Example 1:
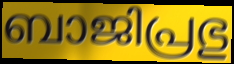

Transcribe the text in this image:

ബാജിപ്രഭു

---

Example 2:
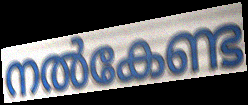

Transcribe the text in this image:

നൽകേണ്ട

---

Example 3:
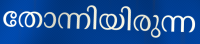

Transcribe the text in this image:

തോന്നിയിരുന്ന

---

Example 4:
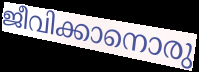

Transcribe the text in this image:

ജീവിക്കാനൊരു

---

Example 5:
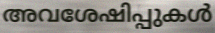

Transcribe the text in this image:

അവശേഷിപ്പുകൾ